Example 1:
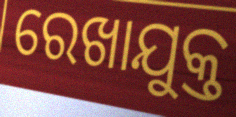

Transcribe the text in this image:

ରେଖାଯୁକ୍ତ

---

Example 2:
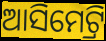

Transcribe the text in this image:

ଆସିମେଟ୍ରି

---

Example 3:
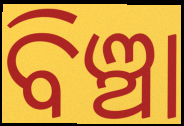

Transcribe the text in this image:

ବିଞ୍ଚା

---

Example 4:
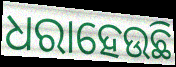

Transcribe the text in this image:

ଧରାହେଉଛି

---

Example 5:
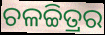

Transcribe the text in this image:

ଚଳଚ୍ଚିତ୍ରର